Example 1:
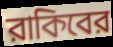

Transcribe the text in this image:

রাকিবের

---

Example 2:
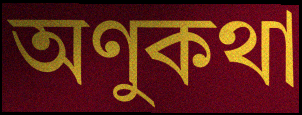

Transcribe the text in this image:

অণুকথা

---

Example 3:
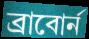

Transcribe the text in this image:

ব্রাবোর্ন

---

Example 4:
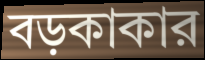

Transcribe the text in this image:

বড়কাকার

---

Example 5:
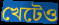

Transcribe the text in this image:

খেটেও